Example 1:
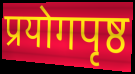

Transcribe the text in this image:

प्रयोगपृष्ठ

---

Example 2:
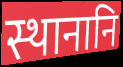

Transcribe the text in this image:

स्थानानि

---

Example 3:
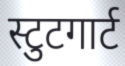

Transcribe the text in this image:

स्टुटगार्ट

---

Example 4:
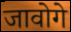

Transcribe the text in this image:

जावोगे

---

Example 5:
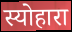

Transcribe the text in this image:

स्योहारा